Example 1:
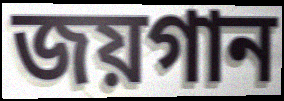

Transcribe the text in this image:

জয়গান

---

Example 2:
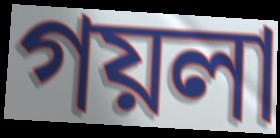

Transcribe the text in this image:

গয়লা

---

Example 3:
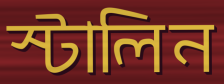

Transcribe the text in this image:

স্টালিন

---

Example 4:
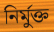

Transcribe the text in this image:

নির্মুক্ত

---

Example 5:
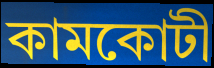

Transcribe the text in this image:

কামকোটী